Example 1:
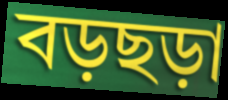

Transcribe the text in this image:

বড়ছড়া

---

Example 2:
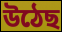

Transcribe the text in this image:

উঠেছ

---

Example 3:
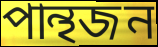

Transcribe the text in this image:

পান্থজন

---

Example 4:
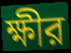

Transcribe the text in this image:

ক্ষীর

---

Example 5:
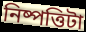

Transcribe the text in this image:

নিষ্পত্তিটা